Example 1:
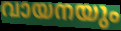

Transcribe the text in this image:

വായനയും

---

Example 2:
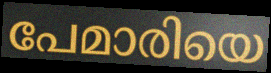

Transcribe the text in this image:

പേമാരിയെ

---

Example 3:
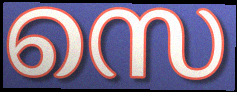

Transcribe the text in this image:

സെ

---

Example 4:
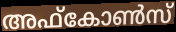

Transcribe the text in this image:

അഫ്കോൺസ്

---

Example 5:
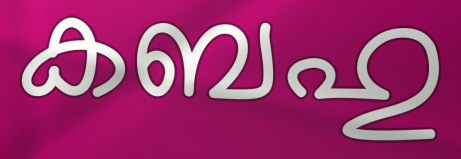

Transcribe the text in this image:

കബഹു